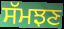
ਸੱਮਝਣ